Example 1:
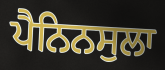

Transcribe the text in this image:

ਪੈਨਿਨਸੁਲਾ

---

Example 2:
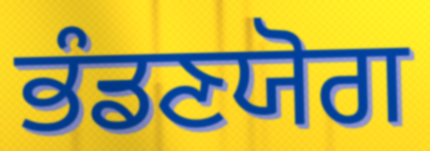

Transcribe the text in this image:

ਭੰਡਣਯੋਗ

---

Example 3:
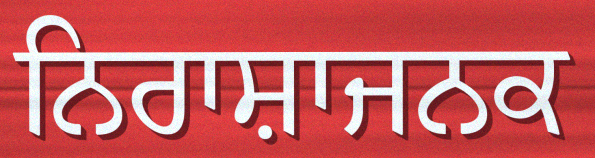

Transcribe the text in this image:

ਨਿਰਾਸ਼ਾਜਨਕ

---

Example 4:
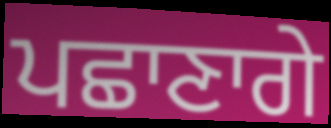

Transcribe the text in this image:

ਪਛਾਣਾਗੇ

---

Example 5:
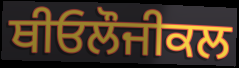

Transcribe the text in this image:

ਥੀਓਲੌਜੀਕਲ